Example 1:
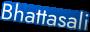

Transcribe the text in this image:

Bhattasali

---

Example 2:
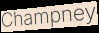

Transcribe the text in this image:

Champney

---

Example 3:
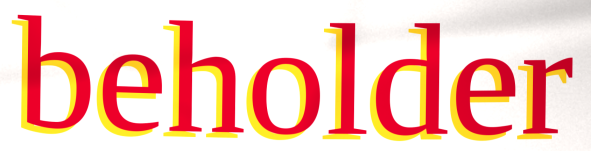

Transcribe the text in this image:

beholder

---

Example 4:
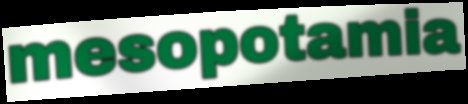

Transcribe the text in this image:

mesopotamia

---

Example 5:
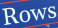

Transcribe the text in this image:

Rows